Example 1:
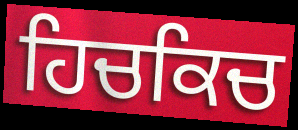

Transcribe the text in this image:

ਹਿਚਕਿਚ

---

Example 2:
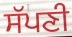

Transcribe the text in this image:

ਸੱਪਣੀ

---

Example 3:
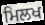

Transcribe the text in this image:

ਮਿਲਖ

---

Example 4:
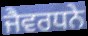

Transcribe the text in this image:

ਜੈਵਰਧਨੇ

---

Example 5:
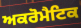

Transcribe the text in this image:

ਅਕਰੋਮੈਟਿਕ